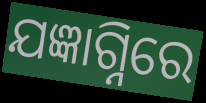
ଯଜ୍ଞାଗ୍ନିରେ